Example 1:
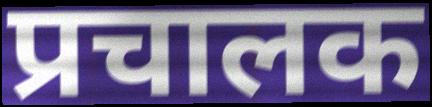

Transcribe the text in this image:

प्रचालक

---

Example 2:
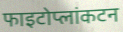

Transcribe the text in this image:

फाइटोप्लांकटन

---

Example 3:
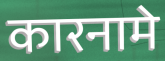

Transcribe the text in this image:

कारनामे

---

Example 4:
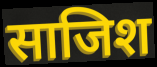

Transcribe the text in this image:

साजिश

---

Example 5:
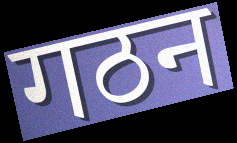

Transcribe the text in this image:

गठन